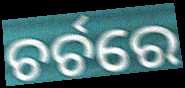
ଚର୍ଚରେ